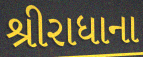
શ્રીરાધાના